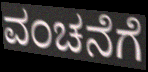
ವಂಚನೆಗೆ